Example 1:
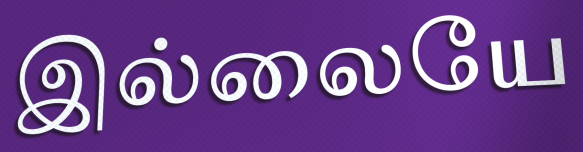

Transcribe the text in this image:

இல்லையே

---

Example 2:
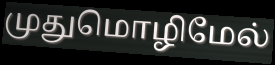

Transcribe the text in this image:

முதுமொழிமேல்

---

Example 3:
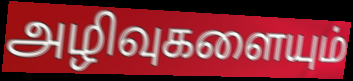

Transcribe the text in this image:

அழிவுகளையும்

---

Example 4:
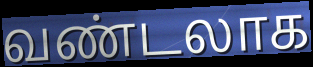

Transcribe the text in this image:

வண்டலாக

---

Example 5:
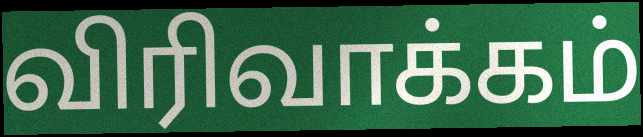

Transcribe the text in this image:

விரிவாக்கம்